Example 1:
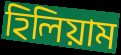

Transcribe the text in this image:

হিলিয়াম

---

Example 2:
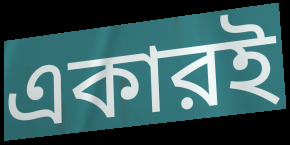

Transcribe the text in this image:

একারই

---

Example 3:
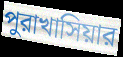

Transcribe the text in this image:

পুরাখাসিয়ার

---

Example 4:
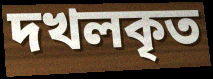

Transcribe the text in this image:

দখলকৃত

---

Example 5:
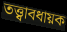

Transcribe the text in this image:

তত্ত্বাবধায়ক